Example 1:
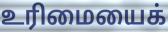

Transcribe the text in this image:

உரிமையைக்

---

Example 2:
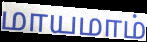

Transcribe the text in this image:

மாயமாம்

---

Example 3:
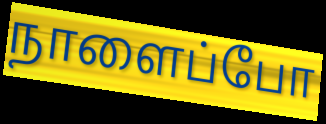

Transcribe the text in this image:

நாளைப்போ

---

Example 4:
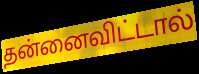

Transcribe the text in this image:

தன்னைவிட்டால்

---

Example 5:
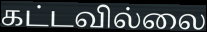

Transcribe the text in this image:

கட்டவில்லை